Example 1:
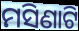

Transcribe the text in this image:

ମସିଣାଟି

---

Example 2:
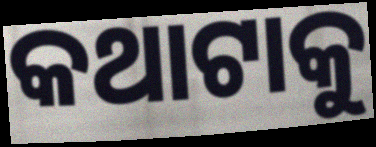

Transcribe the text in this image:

କଥାଟାକୁ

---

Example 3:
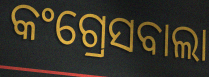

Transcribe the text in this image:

କଂଗ୍ରେସବାଲା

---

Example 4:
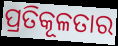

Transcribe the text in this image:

ପ୍ରତିକୂଳତାର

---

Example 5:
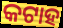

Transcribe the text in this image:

କଟାହ